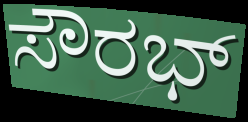
ಸೌರಭ್